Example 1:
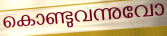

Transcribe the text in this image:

കൊണ്ടുവന്നുവോ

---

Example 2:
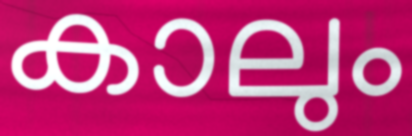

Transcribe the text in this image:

കാലും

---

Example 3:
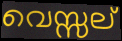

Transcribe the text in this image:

വെസ്സല്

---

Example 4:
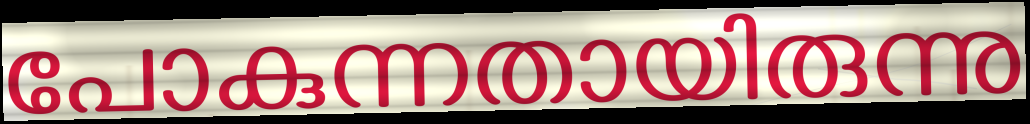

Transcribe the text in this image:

പോകുന്നതായിരുന്നു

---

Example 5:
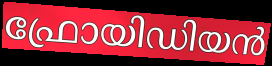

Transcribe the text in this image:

ഫ്രോയിഡിയൻ